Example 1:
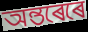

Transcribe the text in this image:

অন্তৰেৰে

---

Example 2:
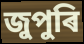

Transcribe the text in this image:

জুপুৰি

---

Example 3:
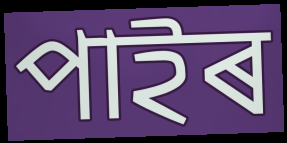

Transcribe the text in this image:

পাইৰ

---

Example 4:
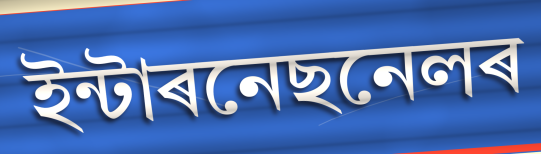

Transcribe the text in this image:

ইন্টাৰনেছনেলৰ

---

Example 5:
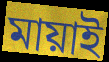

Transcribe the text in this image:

মায়াই